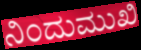
ನಿಂದುಮುಖಿ